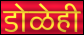
डोळेही